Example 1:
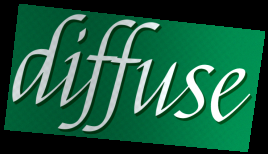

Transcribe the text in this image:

diffuse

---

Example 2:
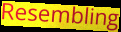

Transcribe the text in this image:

Resembling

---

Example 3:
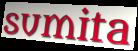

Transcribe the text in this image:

sumita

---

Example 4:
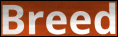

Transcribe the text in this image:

Breed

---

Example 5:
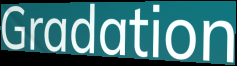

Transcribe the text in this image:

Gradation